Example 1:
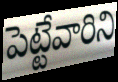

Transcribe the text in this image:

పెట్టేవారిని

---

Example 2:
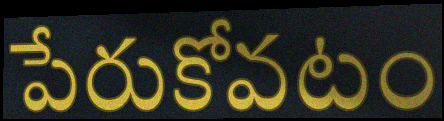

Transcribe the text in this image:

పేరుకోవటం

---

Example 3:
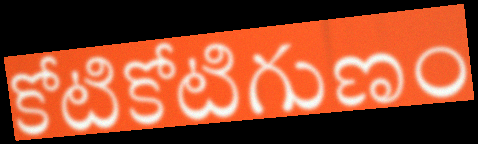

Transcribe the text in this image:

కోటికోటిగుణం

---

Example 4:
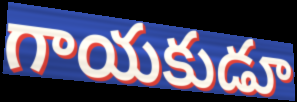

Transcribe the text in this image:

గాయకుడూ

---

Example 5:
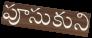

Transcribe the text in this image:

పూసుకుని